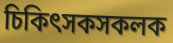
চিকিৎসকসকলক